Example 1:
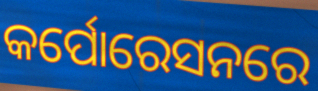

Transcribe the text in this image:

କର୍ପୋରେସନରେ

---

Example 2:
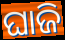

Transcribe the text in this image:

ଘାଜି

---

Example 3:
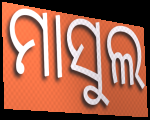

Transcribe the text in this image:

ମାସୁଲ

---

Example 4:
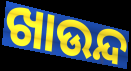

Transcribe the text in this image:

ଖାଉନ୍ଦ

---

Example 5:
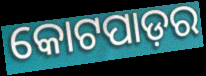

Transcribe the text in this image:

କୋଟପାଡ଼ର